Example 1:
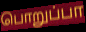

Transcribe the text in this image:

பொறுப்பா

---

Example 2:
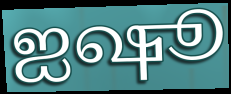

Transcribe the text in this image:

ஐஷூ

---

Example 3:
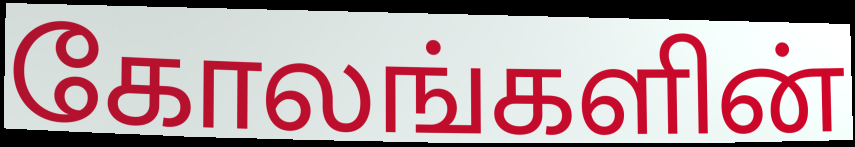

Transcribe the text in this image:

கோலங்களின்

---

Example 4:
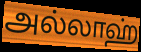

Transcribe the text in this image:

அல்லாஹ்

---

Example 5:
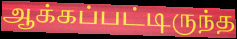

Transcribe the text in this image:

ஆக்கப்பட்டிருந்த